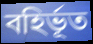
বহির্ভূত